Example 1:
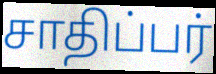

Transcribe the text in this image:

சாதிப்பர்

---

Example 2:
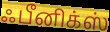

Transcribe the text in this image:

ஃபீனிக்ஸ்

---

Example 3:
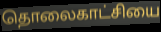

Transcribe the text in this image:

தொலைகாட்சியை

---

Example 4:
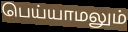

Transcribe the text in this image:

பெய்யாமலும்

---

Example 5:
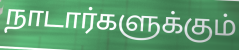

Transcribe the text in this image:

நாடார்களுக்கும்